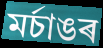
মৰ্চাঙৰ